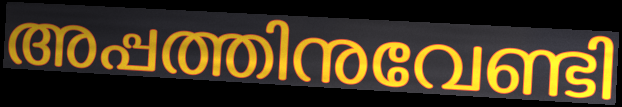
അപ്പത്തിനുവേണ്ടി